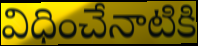
విధించేనాటికి